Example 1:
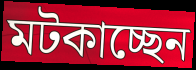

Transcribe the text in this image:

মটকাচ্ছেন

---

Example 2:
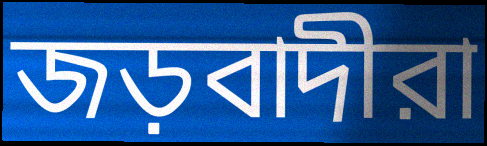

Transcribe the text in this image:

জড়বাদীরা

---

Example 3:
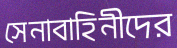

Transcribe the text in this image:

সেনাবাহিনীদের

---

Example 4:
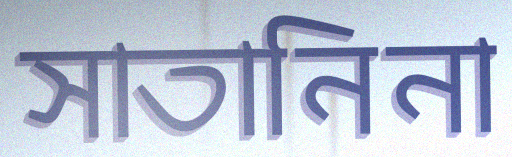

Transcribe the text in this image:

সাতানিনা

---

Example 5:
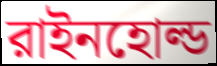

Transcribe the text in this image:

রাইনহোল্ড